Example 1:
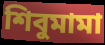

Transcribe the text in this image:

শিবুমামা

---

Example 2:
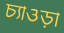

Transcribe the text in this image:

চ্যাওড়া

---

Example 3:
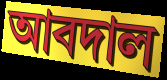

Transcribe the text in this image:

আবদাল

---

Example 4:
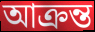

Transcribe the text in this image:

আক্রন্ত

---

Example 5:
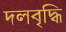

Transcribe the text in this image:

দলবৃদ্ধি